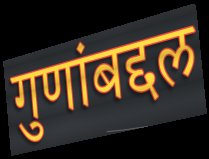
गुणांबद्दल